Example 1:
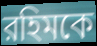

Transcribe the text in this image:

রহিমকে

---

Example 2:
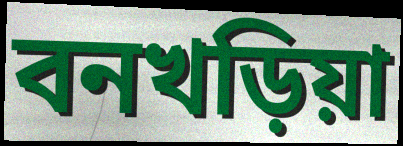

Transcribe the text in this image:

বনখড়িয়া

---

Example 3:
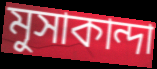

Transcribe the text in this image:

মুসাকান্দা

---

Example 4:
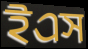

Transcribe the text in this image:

ইএস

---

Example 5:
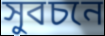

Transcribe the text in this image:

সুবচনে